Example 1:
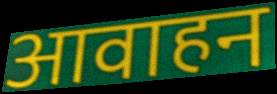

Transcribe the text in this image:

आवाहन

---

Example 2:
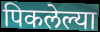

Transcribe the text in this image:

पिकलेल्या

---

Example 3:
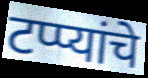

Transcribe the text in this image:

टप्प्यांचे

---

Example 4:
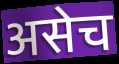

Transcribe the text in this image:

असेच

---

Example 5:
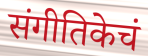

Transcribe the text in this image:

संगीतिकेचं